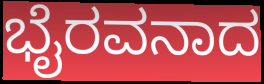
ಭೈರವನಾದ